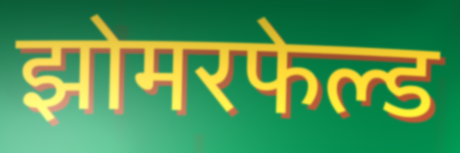
झोमरफेल्ड